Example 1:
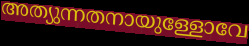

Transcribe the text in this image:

അത്യുന്നതനായുള്ളോവേ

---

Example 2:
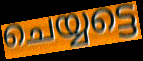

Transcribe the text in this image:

ചെയ്യട്ടെ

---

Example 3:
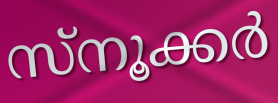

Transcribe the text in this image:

സ്നൂക്കർ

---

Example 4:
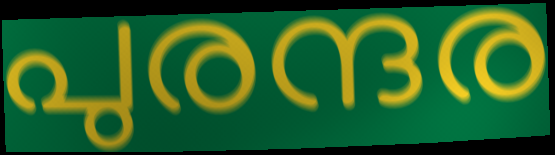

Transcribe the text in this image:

പുരന്ദര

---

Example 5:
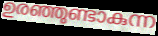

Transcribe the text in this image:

ഉരഞ്ഞുണ്ടാകുന്ന